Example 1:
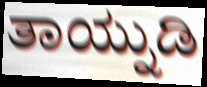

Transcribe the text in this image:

ತಾಯ್ನುಡಿ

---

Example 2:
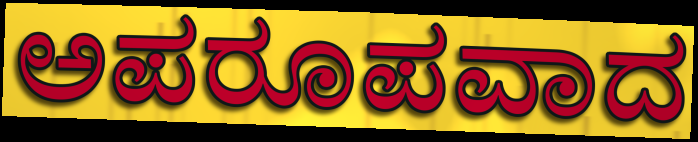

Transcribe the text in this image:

ಅಪರೂಪವಾದ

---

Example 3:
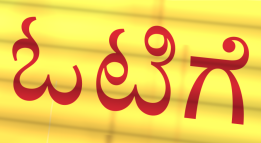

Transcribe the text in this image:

ಓಟಿಗೆ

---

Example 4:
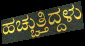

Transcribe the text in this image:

ಹಚ್ಚುತ್ತಿದ್ದಳು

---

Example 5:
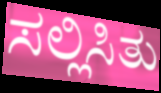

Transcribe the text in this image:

ಸಲ್ಲಿಸಿತು